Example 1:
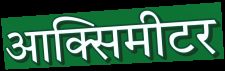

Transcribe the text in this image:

आक्सिमीटर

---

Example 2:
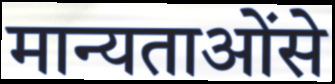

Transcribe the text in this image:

मान्यताओंसे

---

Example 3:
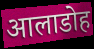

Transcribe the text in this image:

आलाडोह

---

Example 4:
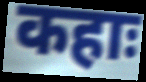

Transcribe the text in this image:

कहाः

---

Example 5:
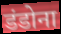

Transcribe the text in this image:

डंडोना